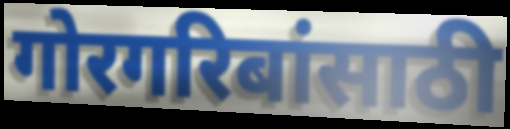
गोरगरिबांसाठी